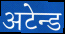
अटेन्ड